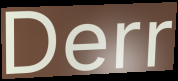
Derr